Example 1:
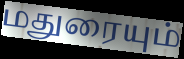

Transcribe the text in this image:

மதுரையும்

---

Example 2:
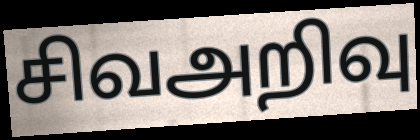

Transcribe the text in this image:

சிவஅறிவு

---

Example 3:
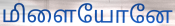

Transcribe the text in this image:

மிளையோனே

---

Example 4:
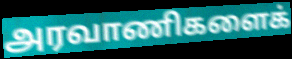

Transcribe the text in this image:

அரவாணிகளைக்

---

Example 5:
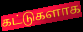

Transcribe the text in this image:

கட்டுகளாக